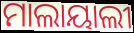
ମାଲାୟାଲୀ